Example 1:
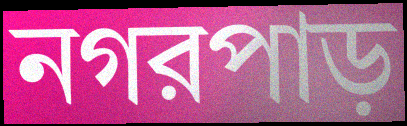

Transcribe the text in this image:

নগরপাড়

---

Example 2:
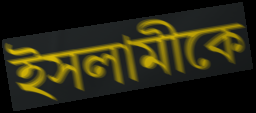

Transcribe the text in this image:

ইসলামীকে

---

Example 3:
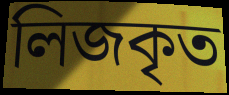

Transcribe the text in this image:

লিজকৃত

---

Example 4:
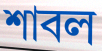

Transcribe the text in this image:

শাবল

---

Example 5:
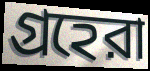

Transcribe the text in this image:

গ্রহেরা